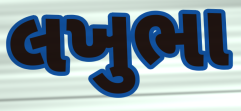
લખુભા